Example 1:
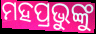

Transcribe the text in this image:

ମହପ୍ରଭୁଙ୍କୁ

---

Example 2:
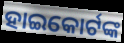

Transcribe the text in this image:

ହାଇକୋର୍ଟଙ୍କ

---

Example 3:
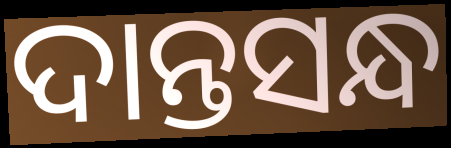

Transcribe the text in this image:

ଦାନ୍ତସନ୍ଧ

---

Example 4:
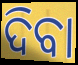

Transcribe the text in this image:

ଦିବା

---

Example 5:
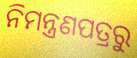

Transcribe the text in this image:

ନିମନ୍ତ୍ରଣପତ୍ରରୁ